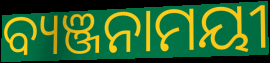
ବ୍ୟଞ୍ଜନାମୟୀ